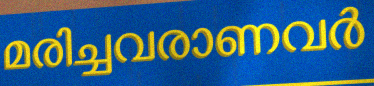
മരിച്ചവരാണവർ